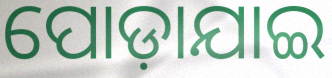
ପୋଡ଼ାଯାଇ